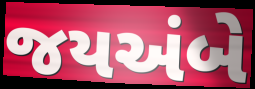
જયઅંબે